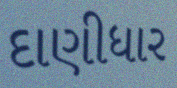
દાણીધાર